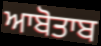
ਆਬੋਤਾਬ